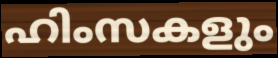
ഹിംസകളും